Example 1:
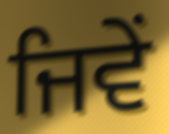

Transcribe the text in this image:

ਜਿਵੇਂ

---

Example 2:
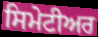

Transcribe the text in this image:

ਸਿਮੇਟੀਅਰ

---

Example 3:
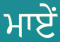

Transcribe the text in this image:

ਮਾਏਂ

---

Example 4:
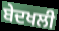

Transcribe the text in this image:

ਬੇਦਖਲੀ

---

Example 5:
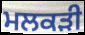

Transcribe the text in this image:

ਮਲਕੜੀ